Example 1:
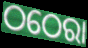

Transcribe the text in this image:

ଠଠେରା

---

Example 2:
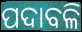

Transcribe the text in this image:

ପଦାବଳି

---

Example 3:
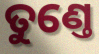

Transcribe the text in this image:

ତୁଣ୍ତେ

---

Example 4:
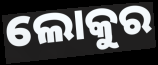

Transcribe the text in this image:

ଲୋକୁର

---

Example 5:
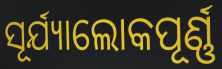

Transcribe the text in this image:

ସୂର୍ଯ୍ୟାଲୋକପୂର୍ଣ୍ଣ